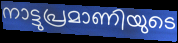
നാട്ടുപ്രമാണിയുടെ